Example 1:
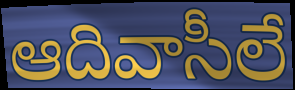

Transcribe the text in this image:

ఆదివాసీలే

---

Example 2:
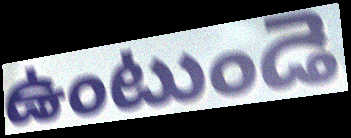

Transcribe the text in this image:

ఉంటుండె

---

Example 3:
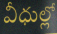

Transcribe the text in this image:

వీధుల్లో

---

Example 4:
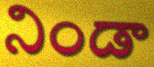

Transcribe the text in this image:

నిండా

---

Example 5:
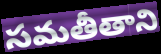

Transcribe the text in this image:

సమతీతాని